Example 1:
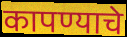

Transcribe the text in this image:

कापण्याचे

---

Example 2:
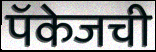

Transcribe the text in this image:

पॅकेजची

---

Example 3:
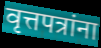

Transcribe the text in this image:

वृत्तपत्रांना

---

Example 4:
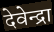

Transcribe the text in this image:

देवेन्द्रा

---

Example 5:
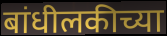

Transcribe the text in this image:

बांधीलकीच्या